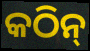
କଠିନ୍